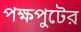
পক্ষপুটের